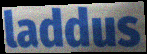
laddus